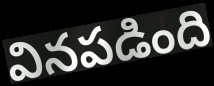
వినపడింది